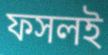
ফসলই